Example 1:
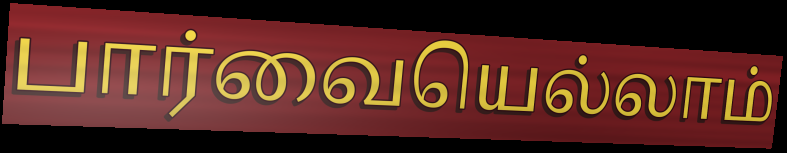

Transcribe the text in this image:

பார்வையெல்லாம்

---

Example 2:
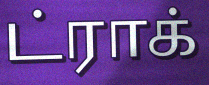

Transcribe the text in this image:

ட்ராக்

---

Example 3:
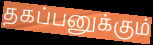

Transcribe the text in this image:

தகப்பனுக்கும்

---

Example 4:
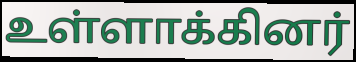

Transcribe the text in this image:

உள்ளாக்கினர்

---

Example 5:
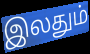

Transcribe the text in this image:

இலதும்